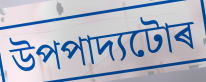
উপপাদ্যটোৰ